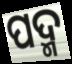
ପଦ୍ମ